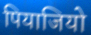
पियाजियो